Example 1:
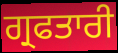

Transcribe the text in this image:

ਗ੍ਰਫਤਾਰੀ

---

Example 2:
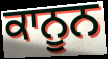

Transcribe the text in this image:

ਕਾਨੂਨ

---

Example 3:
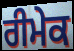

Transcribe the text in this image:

ਰੀਮੇਕ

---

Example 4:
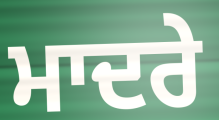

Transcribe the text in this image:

ਮਾਦਰੇ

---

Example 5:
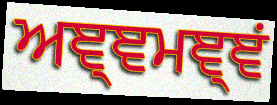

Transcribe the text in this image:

ਅਞ੍ਞਮਞ੍ਞਂ